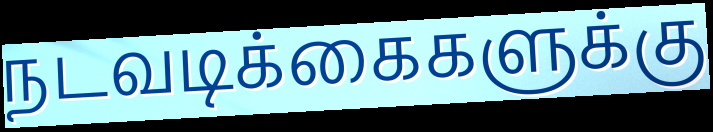
நடவடிக்கைகளுக்கு